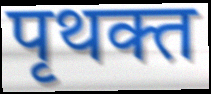
पृथक्त